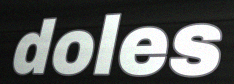
doles